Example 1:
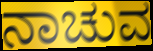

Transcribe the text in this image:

ನಾಚುವ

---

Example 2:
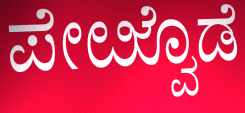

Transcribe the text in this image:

ಪೇೞ್ವೊಡೆ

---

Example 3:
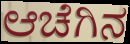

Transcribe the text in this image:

ಆಚೆಗಿನ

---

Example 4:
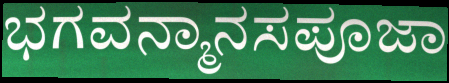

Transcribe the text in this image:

ಭಗವನ್ಮಾನಸಪೂಜಾ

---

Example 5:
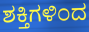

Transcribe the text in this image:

ಶಕ್ತಿಗಳಿಂದ